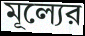
মূল্যের